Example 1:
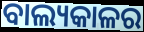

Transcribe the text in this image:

ବାଲ୍ୟକାଳର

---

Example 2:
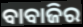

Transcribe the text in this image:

ବାବାଜିର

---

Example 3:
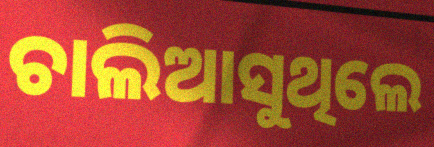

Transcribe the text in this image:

ଚାଲିଆସୁଥିଲେ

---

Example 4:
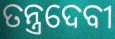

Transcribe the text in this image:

ତନ୍ତ୍ରଦେବୀ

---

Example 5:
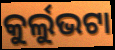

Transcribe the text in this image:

କୁର୍ଲୁଭଟା